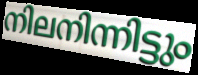
നിലനിന്നിട്ടും